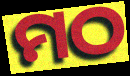
ମଠ